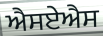
ਐਸਏਐਸ